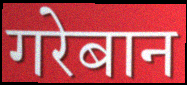
गरेबान